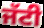
ਜੱਟੀ